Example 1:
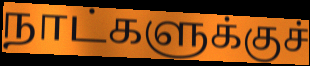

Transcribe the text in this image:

நாட்களுக்குச்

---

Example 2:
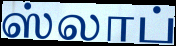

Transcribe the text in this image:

ஸ்லாப்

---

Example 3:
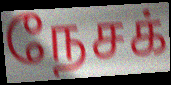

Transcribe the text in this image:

நேசக்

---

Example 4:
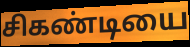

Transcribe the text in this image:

சிகண்டியை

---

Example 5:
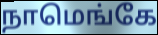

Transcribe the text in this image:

நாமெங்கே